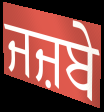
ਜਜ਼ਬੇ